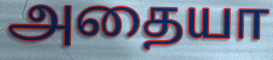
அதையா